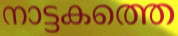
നാട്ടകത്തെ